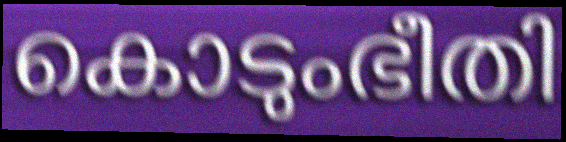
കൊടുംഭീതി